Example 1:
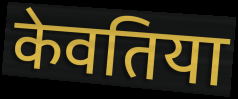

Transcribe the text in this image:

केवतिया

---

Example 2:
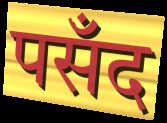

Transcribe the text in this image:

पसँद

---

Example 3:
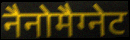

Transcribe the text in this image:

नैनोमैग्नेट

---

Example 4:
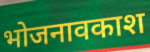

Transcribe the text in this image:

भोजनावकाश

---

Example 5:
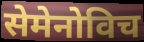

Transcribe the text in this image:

सेमेनोविच